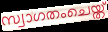
സ്വാഗതംചെയ്ത്